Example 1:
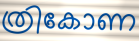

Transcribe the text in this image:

ത്രികോണ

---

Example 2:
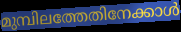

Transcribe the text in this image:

മുമ്പിലത്തേതിനേക്കാൾ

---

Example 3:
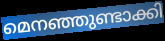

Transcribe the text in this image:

മെനഞ്ഞുണ്ടാക്കി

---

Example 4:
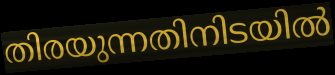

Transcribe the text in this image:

തിരയുന്നതിനിടയിൽ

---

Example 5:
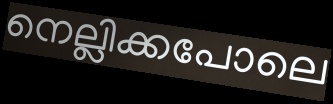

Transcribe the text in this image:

നെല്ലിക്കപോലെ